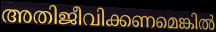
അതിജീവിക്കണമെങ്കിൽ